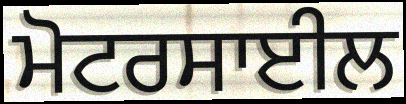
ਮੋਟਰਸਾਈਲ